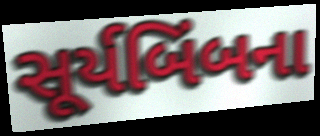
સૂર્યબિંબના